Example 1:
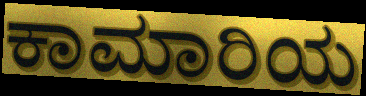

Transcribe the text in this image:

ಕಾಮಾರಿಯ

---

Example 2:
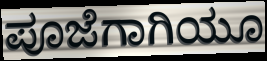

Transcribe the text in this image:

ಪೂಜೆಗಾಗಿಯೂ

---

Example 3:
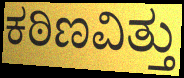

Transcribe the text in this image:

ಕಠಿಣವಿತ್ತು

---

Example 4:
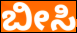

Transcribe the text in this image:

ಬೀಸಿ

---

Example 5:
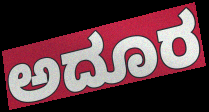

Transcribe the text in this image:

ಅದೂರ